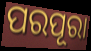
ପରପୂରା